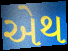
એથ